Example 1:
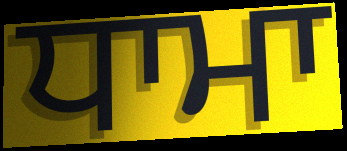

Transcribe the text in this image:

ਧਾਮਾ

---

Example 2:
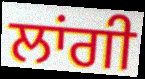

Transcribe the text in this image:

ਲਾਂਗੀ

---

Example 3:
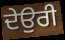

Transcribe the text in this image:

ਦੇਉਰੀ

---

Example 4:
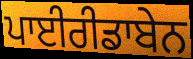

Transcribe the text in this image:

ਪਾਈਰੀਡਾਬੇਨ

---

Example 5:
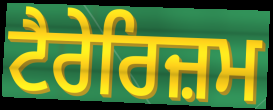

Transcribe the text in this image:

ਟੈਰੇਰਿਜ਼ਮ